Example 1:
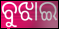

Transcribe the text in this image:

ବୁଝାଇ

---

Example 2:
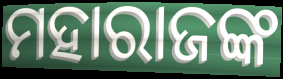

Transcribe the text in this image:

ମହାରାଜଙ୍କ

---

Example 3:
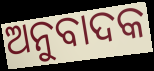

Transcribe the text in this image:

ଅନୁବାଦକ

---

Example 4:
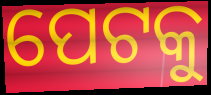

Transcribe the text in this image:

ପେଟକୁ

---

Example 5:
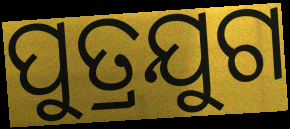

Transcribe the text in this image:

ପୁତ୍ରଯୁଗ